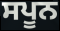
ਸਪੂਨ